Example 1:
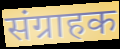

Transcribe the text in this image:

संग्राहक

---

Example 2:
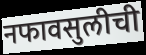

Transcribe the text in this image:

नफावसुलीची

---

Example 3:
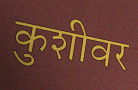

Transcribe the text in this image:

कुशीवर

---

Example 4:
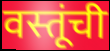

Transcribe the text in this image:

वस्तूंची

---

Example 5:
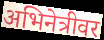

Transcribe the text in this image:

अभिनेत्रीवर